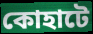
কোহাটে